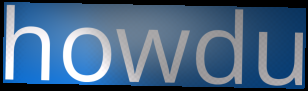
howdu